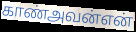
காண்அவன்என்